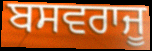
ਬਸਵਰਾਜੂ